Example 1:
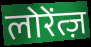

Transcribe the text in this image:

लोरेंत्ज़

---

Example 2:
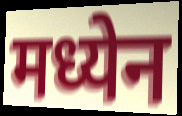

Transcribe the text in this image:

मध्येन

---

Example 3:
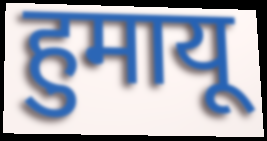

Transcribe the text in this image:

हुमायू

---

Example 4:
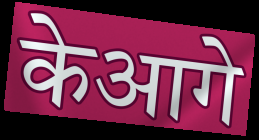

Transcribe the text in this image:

केआगे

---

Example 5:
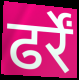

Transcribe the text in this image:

ढर्रें